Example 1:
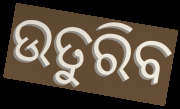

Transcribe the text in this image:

ଉତୁରିବ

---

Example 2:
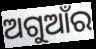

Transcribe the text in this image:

ଅଗୁଆଁର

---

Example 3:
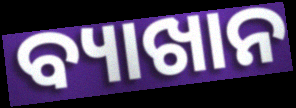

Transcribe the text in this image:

ବ୍ୟାଖାନ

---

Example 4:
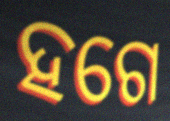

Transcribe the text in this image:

ହଗେ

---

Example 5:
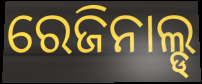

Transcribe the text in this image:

ରେଜିନାଲ୍ଡ୍